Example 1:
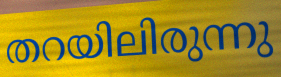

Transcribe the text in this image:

തറയിലിരുന്നു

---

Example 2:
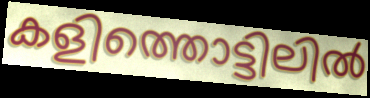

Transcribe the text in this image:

കളിത്തൊട്ടിലിൽ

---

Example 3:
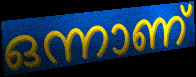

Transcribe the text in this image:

ഒന്നാണ്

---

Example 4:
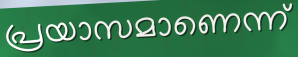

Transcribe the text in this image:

പ്രയാസമാണെന്ന്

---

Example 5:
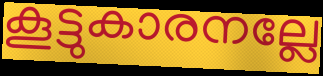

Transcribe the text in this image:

കൂട്ടുകാരനല്ലേ